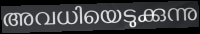
അവധിയെടുക്കുന്നു